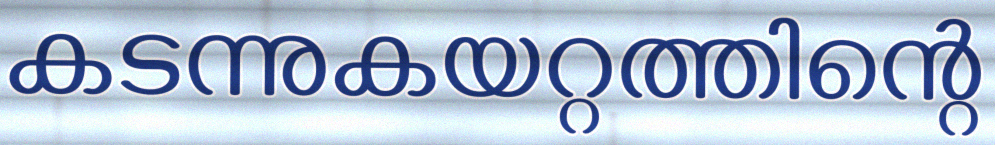
കടന്നുകയറ്റത്തിന്റെ